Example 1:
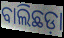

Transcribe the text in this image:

ବାଲିଛଡ଼ା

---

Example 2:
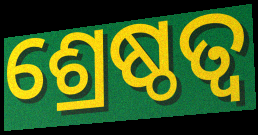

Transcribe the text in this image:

ଶ୍ରେଷ୍ଠତ୍ବ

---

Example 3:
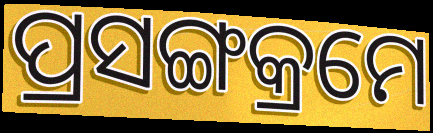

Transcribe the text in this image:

ପ୍ରସଙ୍ଗକ୍ରମେ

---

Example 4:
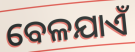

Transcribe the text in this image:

ବେଳଯାଏଁ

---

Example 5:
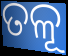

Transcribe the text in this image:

ତଳୂ